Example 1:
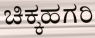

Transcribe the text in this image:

ಚಿಕ್ಕಹಗರಿ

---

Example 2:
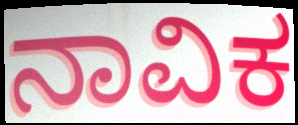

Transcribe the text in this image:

ನಾವಿಕ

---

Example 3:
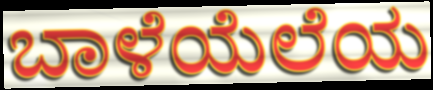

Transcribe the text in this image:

ಬಾಳೆಯೆಲೆಯ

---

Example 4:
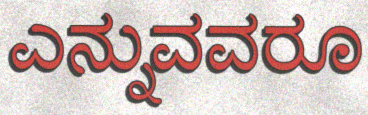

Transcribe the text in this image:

ಎನ್ನುವವರೂ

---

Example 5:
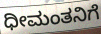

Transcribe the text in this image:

ಧೀಮಂತನಿಗೆ